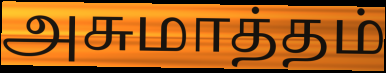
அசுமாத்தம்